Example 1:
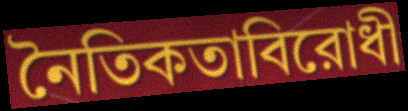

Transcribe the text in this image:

নৈতিকতাবিরোধী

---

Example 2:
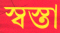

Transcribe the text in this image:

স্বস্তা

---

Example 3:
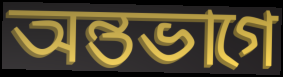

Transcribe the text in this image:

অন্তভাগে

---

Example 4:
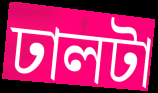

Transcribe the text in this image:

ঢালটা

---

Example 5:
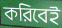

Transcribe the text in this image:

করিবেই